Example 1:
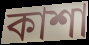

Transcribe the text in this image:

কাশা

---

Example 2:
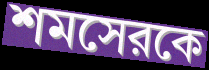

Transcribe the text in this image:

শমসেরকে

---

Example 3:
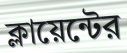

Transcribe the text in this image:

ক্লায়েন্টের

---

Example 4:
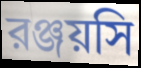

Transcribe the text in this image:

রঞ্জয়সি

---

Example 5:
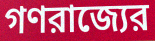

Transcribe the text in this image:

গণরাজ্যের